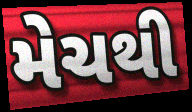
મેચથી